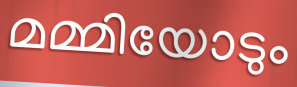
മമ്മിയോടും